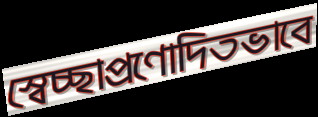
স্বেচ্ছাপ্রণোদিতভাবে